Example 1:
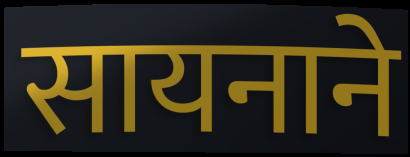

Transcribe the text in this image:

सायनाने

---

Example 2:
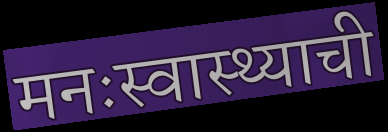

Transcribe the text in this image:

मनःस्वास्थ्याची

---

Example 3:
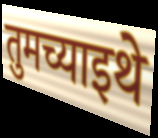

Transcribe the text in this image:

तुमच्याइथे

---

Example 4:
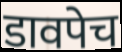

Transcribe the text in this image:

डावपेच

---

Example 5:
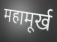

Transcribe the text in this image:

महामूर्ख